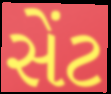
સેંટ